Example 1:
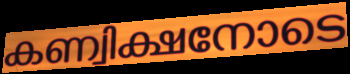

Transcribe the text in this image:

കണ്വിക്ഷനോടെ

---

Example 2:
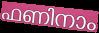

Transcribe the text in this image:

ഫണിനാം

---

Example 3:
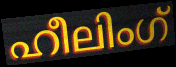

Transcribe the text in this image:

ഹീലിംഗ്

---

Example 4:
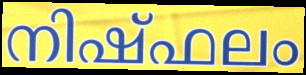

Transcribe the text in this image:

നിഷ്ഫലം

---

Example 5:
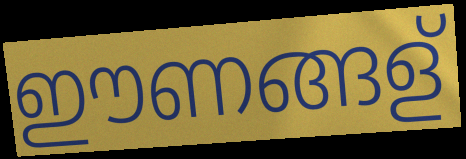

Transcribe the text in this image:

ഈണങ്ങള്